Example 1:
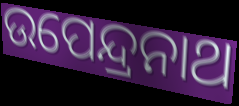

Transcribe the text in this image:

ଉପେନ୍ଦ୍ରନାଥ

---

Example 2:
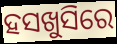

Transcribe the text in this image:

ହସଖୁସିରେ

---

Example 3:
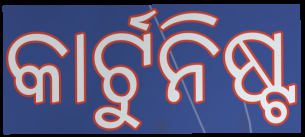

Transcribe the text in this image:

କାର୍ଟୁନିଷ୍ଟ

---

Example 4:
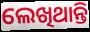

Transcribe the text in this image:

ଲେଖିଥାନ୍ତି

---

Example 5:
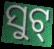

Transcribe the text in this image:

ସୁଟ୍